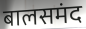
बालसमंद